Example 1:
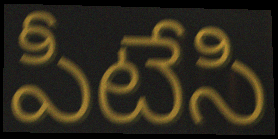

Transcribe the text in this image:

పీటేసి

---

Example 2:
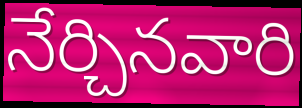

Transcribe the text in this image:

నేర్చినవారి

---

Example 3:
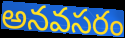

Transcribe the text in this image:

అనవసరం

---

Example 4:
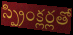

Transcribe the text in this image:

స్ప్రింక్లర్లతో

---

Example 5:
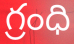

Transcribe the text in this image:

గ్రంధి